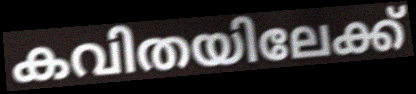
കവിതയിലേക്ക്